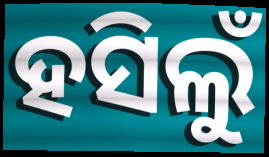
ହସିଲୁଁ